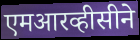
एमआरव्हीसीने